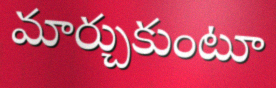
మార్చుకుంటూ